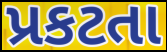
પ્રકટતા